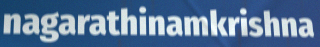
nagarathinamkrishna